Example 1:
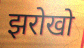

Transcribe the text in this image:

झरोखो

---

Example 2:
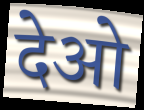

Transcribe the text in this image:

देओ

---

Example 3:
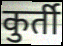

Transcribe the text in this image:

कुर्ती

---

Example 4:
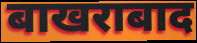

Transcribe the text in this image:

बाखराबाद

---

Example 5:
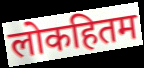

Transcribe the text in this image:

लोकहितम